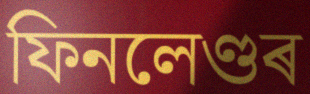
ফিনলেণ্ডৰ